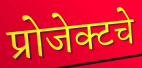
प्रोजेक्टचे